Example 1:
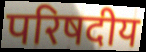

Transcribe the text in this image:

परिषदीय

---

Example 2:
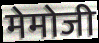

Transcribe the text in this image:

मेमोजी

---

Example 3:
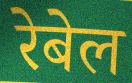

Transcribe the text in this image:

रेबेल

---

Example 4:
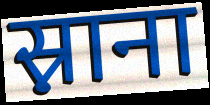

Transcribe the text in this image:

स्नाना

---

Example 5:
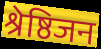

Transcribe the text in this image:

श्रेष्ठिजन